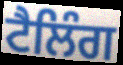
ਟੈਲਿੰਗ